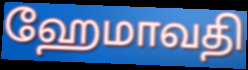
ஹேமாவதி